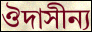
ঔদাসীন্য